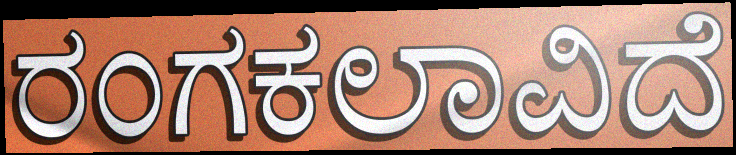
ರಂಗಕಲಾವಿದೆ